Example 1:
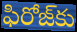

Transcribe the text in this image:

ఫిరోజ్‌కు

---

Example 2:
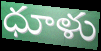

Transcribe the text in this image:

ధూళు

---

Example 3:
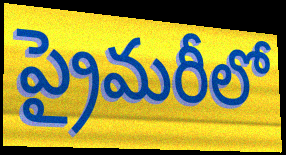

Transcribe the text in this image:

ప్రైమరీలో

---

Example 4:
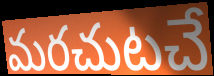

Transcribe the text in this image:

మరచుటచే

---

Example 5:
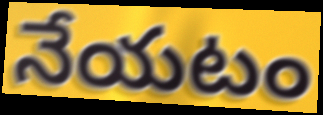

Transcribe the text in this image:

నేయటం